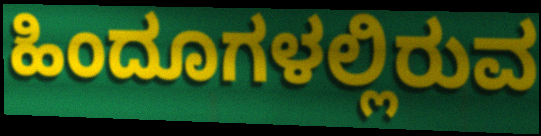
ಹಿಂದೂಗಳಲ್ಲಿರುವ